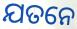
ଯତନେ